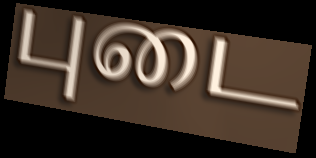
புடை